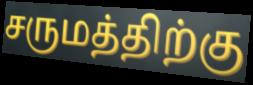
சருமத்திற்கு